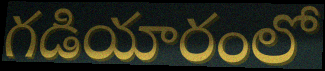
గడియారంలో